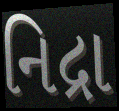
નિદ્રા